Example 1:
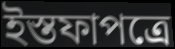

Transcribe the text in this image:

ইস্তফাপত্রে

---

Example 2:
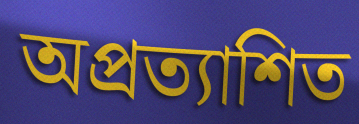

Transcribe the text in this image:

অপ্রত্যাশিত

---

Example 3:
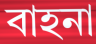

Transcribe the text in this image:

বাহনা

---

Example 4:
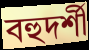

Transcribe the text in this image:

বহুদর্শী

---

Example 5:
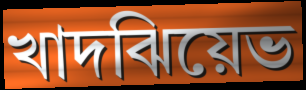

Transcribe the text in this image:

খাদঝিয়েভ